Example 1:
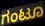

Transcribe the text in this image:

ಗಂಟೂ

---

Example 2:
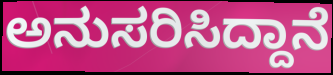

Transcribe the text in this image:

ಅನುಸರಿಸಿದ್ದಾನೆ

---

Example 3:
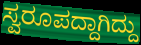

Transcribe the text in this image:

ಸ್ವರೂಪದ್ದಾಗಿದ್ದು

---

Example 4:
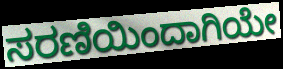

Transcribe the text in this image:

ಸರಣಿಯಿಂದಾಗಿಯೇ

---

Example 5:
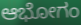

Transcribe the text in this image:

ಆಭೋಗಂ